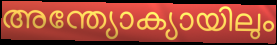
അന്ത്യോക്യായിലും